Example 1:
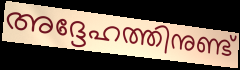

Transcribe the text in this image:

അദ്ദേഹത്തിനുണ്ട്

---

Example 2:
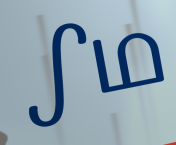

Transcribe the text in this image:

ഽഥ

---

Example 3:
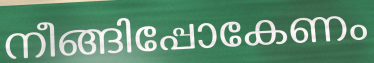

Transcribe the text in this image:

നീങ്ങിപ്പോകേണം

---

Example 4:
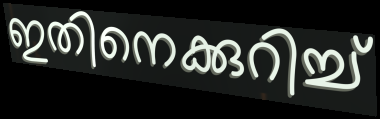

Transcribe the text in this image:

ഇതിനെക്കുറിച്ച്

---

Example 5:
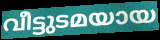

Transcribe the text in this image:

വീട്ടുടമയായ